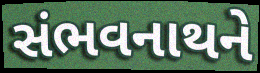
સંભવનાથને